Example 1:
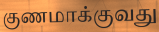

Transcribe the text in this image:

குணமாக்குவது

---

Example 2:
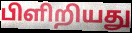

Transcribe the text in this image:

பிளிறியது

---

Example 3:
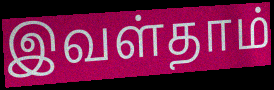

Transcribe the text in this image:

இவள்தாம்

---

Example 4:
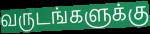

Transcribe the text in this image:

வருடங்களுக்கு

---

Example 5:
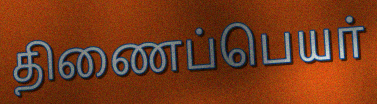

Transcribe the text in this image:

திணைப்பெயர்